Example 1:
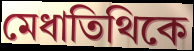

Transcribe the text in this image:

মেধাতিথিকে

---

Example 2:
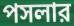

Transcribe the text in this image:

পসলার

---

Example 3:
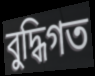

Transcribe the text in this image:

বুদ্ধিগত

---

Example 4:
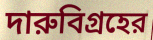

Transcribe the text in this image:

দারুবিগ্রহের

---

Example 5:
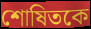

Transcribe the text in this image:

শোষিতকে